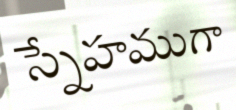
స్నేహముగా